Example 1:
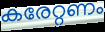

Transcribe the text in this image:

കരേറ്റണം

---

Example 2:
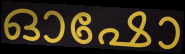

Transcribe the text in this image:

ഓഷോ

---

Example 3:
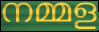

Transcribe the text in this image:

നമ്മള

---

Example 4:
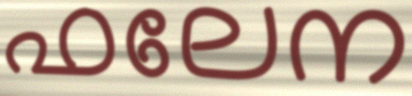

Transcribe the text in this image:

ഫലേന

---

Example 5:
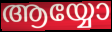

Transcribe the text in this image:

ആയ്യോ